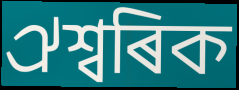
ঐশ্বৰিক